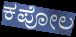
ಕಪೋಲ